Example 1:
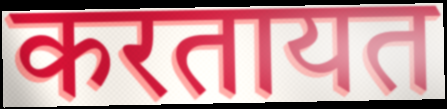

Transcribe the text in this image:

करतायत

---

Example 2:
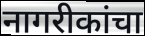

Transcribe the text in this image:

नागरीकांचा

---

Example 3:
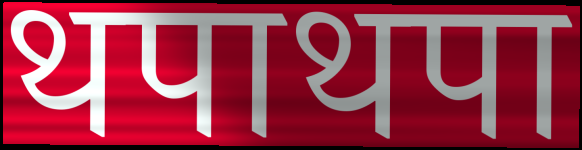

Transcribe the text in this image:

थपाथपा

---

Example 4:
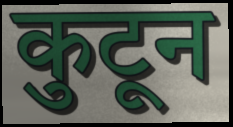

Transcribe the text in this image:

कुटून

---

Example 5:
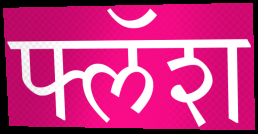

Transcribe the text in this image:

फ्लॅश